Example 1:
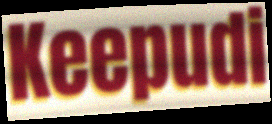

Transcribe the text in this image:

Keepudi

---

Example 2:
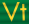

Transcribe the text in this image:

Vt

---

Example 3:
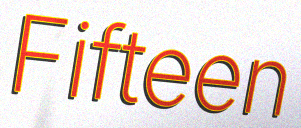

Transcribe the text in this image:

Fifteen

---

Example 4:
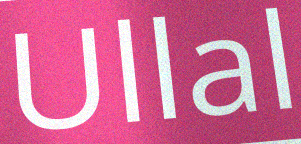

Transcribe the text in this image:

Ullal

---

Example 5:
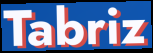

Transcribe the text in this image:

Tabriz